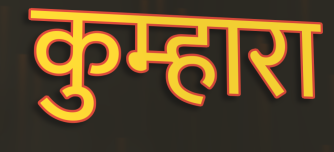
कुम्हारा